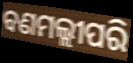
ବଣମଲ୍ଲୀପରି